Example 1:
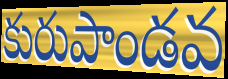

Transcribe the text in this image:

కురుపాండవ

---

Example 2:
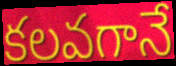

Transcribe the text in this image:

కలవగానే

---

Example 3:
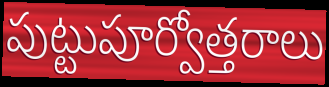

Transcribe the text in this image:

పుట్టుపూర్వోత్తరాలు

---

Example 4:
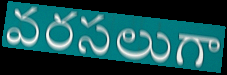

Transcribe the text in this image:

వరసలుగా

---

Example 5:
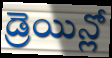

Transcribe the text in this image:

డ్రెయిన్లో